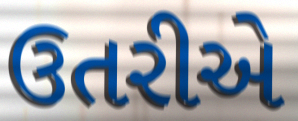
ઉતરીએ